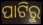
ପାଟିରୁ